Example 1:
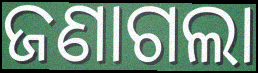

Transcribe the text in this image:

ଜଣାଗଲା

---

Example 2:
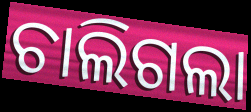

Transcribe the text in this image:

ଚାଲିଗଲା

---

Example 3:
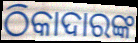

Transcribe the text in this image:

ଠିକାଦାରଙ୍କ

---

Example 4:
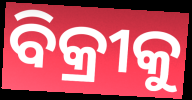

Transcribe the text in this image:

ବିକ୍ରୀକୁ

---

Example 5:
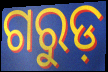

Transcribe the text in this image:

ଗରୁଡ଼